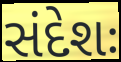
સંદેશઃ